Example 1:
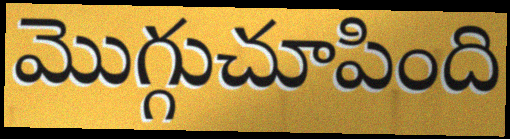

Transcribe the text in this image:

మొగ్గుచూపింది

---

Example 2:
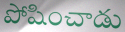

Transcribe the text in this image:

పోషించాడు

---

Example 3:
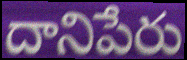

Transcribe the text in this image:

దానిపేరు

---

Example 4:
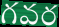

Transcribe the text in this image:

గవర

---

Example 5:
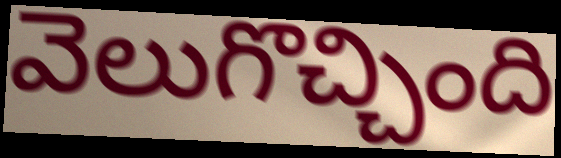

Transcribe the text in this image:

వెలుగొచ్చింది